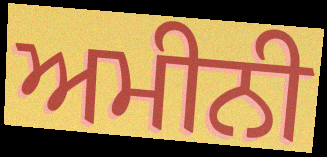
ਅਮੀਨੀ